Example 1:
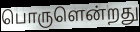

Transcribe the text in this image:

பொருளென்றது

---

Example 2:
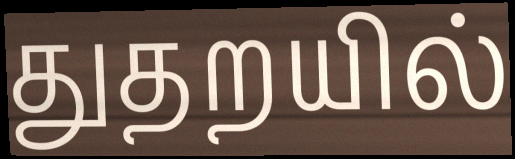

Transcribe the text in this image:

துதறயில்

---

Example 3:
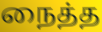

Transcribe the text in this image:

நைத்த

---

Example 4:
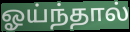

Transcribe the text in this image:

ஓய்ந்தால்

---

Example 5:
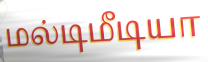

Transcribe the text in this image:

மல்டிமீடியா